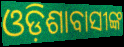
ଓଡ଼ିଶାବାସୀଙ୍କ